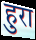
हुरा